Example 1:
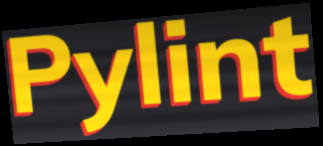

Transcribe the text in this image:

Pylint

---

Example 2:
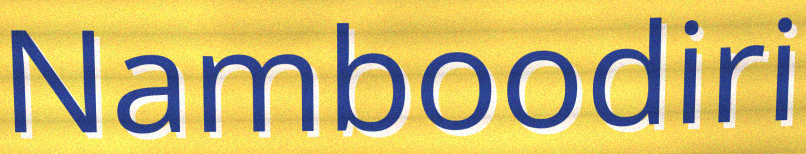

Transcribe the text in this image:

Namboodiri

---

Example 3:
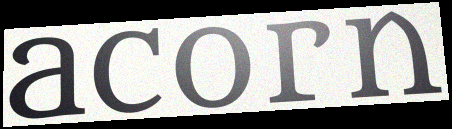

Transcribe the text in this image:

acorn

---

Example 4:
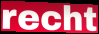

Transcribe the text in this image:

recht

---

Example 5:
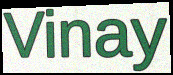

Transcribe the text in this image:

Vinay